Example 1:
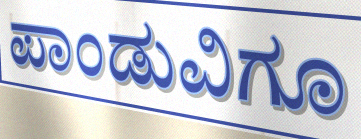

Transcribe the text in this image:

ಪಾಂಡುವಿಗೂ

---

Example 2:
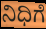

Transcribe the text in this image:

ನಿಧಿಗೆ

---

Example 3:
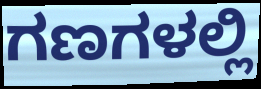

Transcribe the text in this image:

ಗಣಗಳಲ್ಲಿ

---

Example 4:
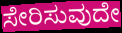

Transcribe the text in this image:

ಸೇರಿಸುವುದೇ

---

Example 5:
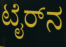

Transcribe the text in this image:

ಟೈರ್‌ನ